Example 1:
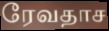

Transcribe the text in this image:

ரேவதாச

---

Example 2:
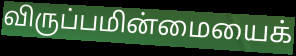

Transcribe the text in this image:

விருப்பமின்மையைக்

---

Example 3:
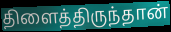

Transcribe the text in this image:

திளைத்திருந்தான்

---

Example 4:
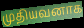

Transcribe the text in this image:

முதியவனாக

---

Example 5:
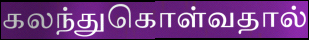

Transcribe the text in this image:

கலந்துகொள்வதால்